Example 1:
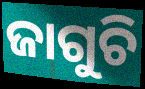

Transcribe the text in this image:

ଜାଗୁଚି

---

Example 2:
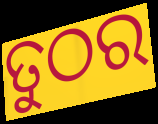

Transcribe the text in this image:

ତୁଠର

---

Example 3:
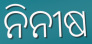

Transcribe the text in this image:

ନିନୀଷ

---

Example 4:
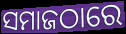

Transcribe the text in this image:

ସମାଜଠାରେ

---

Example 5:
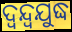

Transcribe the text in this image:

ଦ୍ୱନ୍ଦ୍ୱଯୁଦ୍ଧ